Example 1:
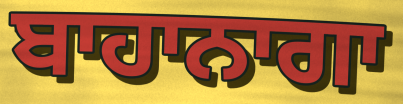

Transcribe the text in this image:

ਬਾਹਾਨਾਗਾ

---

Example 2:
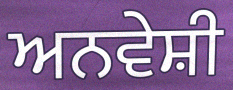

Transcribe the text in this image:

ਅਨਵੇਸ਼ੀ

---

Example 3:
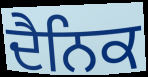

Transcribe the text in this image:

ਦੈਨਿਕ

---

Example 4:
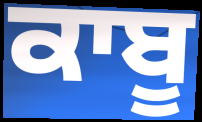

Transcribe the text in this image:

ਕਾਬੂ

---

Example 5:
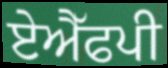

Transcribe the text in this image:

ਏਐੱਫਪੀ